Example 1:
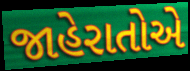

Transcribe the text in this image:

જાહેરાતોએ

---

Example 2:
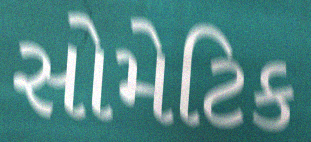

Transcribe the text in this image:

સોમેટિક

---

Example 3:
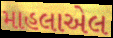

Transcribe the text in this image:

માહલાએલ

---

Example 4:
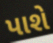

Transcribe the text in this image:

પાશે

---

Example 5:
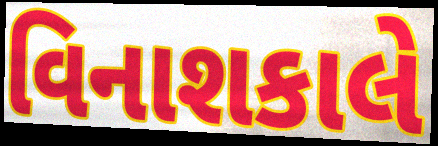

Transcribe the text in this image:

વિનાશકાલે